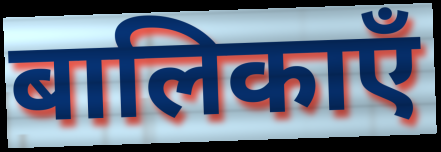
बालिकाएँ